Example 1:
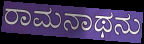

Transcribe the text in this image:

ರಾಮನಾಥನು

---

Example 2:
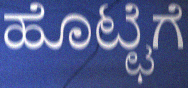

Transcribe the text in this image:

ಹೊಟ್ಟೆಗೆ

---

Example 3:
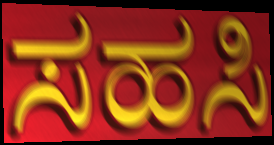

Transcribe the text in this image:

ಸಹಸಿ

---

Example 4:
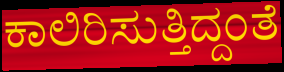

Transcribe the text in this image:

ಕಾಲಿರಿಸುತ್ತಿದ್ದಂತೆ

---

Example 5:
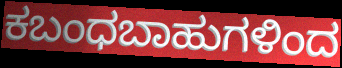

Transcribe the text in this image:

ಕಬಂಧಬಾಹುಗಳಿಂದ